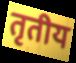
तृतीय